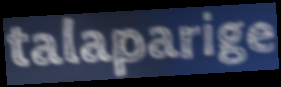
talaparige